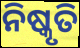
ନିଷ୍କୃତି